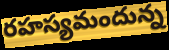
రహస్యమందున్న